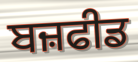
ਬਜ਼ਫੀਡ